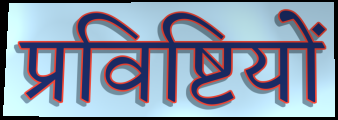
प्रविष्टियों